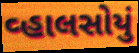
વ્હાલસોયું